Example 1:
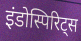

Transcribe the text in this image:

इंडोस्पिरिट्स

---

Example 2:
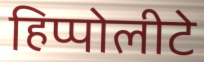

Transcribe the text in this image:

हिप्पोलीटे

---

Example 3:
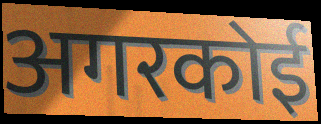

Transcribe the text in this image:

अगरकोई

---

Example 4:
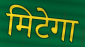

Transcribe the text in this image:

मिटेगा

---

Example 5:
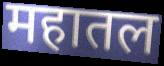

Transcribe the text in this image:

महातल